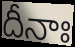
దీనాః